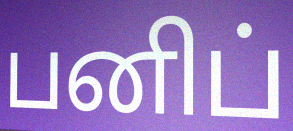
பனிப்